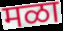
मळा